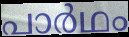
പാർഥം